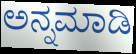
ಅನ್ನಮಾಡಿ